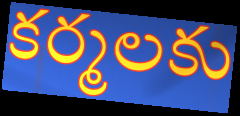
కర్మలకు